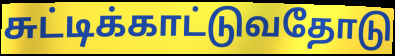
சுட்டிக்காட்டுவதோடு